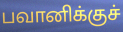
பவானிக்குச்